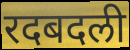
रदबदली